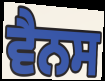
ਵੈਨਸ